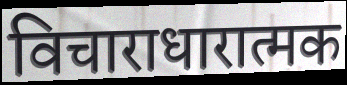
विचाराधारात्मक